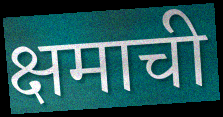
क्षमाची